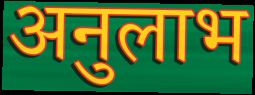
अनुलाभ